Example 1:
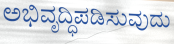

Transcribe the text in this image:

ಅಭಿವೃದ್ಧಿಪಡಿಸುವುದು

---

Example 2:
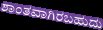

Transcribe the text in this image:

ಶಾಂತವಾಗಿರಬಹುದು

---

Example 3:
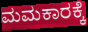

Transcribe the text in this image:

ಮಮಕಾರಕ್ಕೆ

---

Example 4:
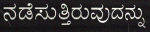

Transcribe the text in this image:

ನಡೆಸುತ್ತಿರುವುದನ್ನು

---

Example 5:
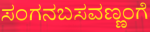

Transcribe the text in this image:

ಸಂಗನಬಸವಣ್ಣಂಗೆ